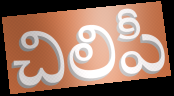
చిలిపీ